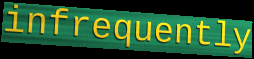
infrequently